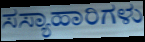
ಸಸ್ಯಾಹಾರಿಗಳು